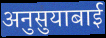
अनुसुयाबाई